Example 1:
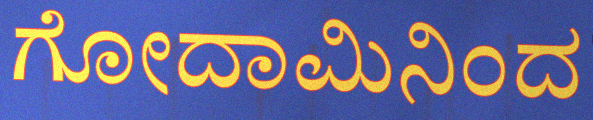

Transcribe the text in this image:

ಗೋದಾಮಿನಿಂದ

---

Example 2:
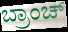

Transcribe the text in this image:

ಬ್ರಾಂಚ್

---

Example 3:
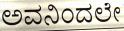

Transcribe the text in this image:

ಅವನಿಂದಲೇ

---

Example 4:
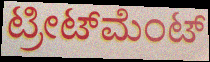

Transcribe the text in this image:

ಟ್ರೀಟ್‌ಮೆಂಟ್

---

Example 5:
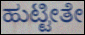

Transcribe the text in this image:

ಹುಟ್ಟೀತೇ